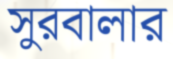
সুরবালার